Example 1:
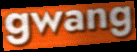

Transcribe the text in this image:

gwang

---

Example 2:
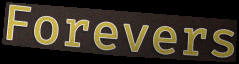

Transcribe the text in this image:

Forevers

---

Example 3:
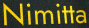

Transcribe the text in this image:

Nimitta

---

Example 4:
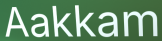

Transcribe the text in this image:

Aakkam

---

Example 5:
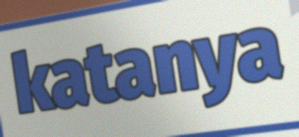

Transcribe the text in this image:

katanya